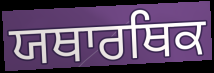
ਯਥਾਰਥਿਕ